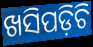
ଖସିପଡ଼ିଚି